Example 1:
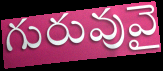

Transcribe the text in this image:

గురువువై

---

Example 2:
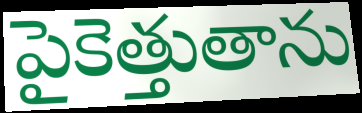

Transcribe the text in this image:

పైకెత్తుతాను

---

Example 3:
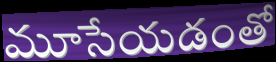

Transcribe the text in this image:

మూసేయడంతో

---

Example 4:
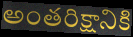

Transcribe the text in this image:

అంతరిక్షానికి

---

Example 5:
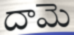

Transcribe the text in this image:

దామె